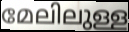
മേലിലുള്ള